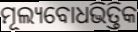
ମୂଲ୍ୟବୋଧଭିତ୍ତିକ